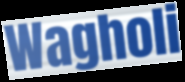
Wagholi